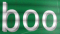
boo